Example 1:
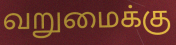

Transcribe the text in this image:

வறுமைக்கு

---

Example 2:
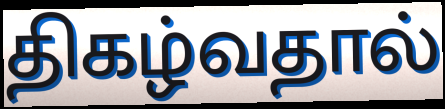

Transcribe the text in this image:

திகழ்வதால்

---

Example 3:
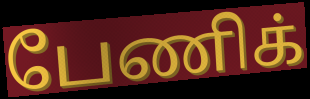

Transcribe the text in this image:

பேணிக்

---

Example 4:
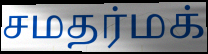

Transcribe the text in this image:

சமதர்மக்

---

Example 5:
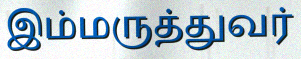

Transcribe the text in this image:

இம்மருத்துவர்